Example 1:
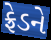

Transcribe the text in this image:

ફ્રેડને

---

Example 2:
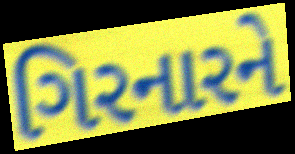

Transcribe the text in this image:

ગિરનારને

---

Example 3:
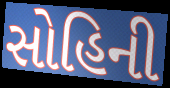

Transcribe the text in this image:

સોહિની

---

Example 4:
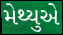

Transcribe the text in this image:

મેથ્યુએ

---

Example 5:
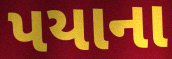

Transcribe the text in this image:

પયાના